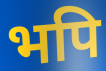
भपि